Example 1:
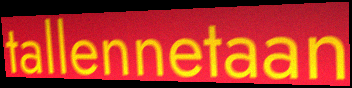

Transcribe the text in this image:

tallennetaan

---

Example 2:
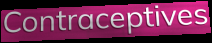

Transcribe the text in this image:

Contraceptives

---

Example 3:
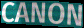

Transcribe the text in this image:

CANON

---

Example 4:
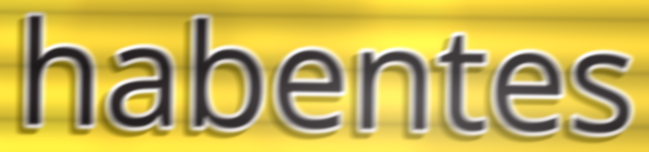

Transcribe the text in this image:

habentes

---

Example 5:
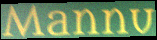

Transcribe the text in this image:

Mannu